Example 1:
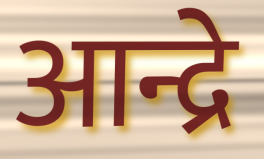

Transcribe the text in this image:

आन्द्रे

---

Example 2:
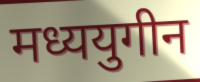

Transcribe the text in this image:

मध्ययुगीन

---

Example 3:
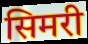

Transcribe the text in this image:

सिमरी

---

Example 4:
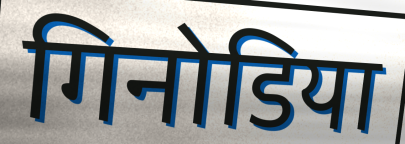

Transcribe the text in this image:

गिनोडिया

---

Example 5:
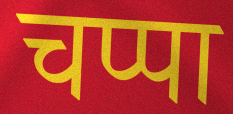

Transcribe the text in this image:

चप्पा